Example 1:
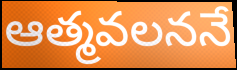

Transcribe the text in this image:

ఆత్మవలననే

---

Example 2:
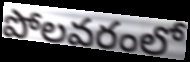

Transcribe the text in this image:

పోలవరంలో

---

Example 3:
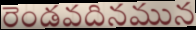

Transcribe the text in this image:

రెండవదినమున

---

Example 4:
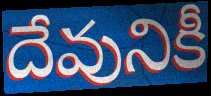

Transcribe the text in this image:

దేవునికీ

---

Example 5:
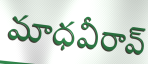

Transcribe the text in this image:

మాధవీరావ్